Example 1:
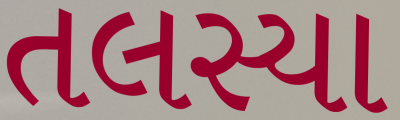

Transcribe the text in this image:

તલસ્યા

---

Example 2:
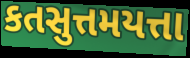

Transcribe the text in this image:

કતસુત્તમયત્તા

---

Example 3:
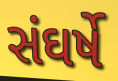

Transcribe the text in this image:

સંઘર્ષે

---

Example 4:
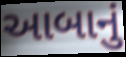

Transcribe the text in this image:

આબાનું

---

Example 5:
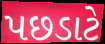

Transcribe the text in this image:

પછડાટે